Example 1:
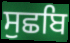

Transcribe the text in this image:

ਸੁਛਬਿ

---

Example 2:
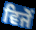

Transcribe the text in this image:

ਵਿਜੋਂ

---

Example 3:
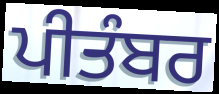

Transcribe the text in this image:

ਪੀਤੰਬਰ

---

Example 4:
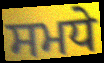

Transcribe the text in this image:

ਸਮਧੇ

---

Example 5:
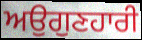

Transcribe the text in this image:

ਅਉਗੁਣਹਾਰੀ